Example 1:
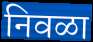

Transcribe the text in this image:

निवळा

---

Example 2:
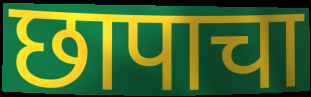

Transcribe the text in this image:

छापाचा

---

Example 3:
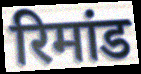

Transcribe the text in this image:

रिमांड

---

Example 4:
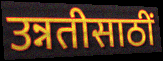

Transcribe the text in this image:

उन्नतीसाठीं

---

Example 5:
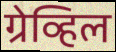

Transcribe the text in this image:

ग्रेव्हिल